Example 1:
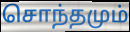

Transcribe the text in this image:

சொந்தமும்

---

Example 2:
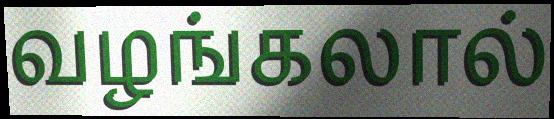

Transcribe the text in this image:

வழங்கலால்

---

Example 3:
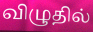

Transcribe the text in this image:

விழுதில்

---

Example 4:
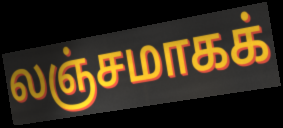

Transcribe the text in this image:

லஞ்சமாகக்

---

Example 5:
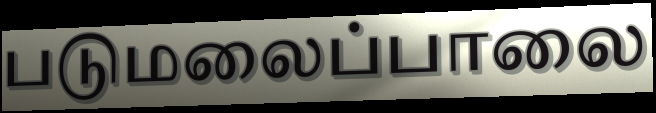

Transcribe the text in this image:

படுமலைப்பாலை